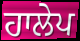
ਹਾਲੇਪ